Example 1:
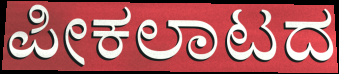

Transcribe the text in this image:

ಪೀಕಲಾಟದ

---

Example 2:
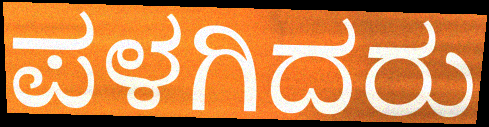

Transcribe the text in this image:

ಪಳಗಿದರು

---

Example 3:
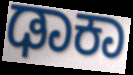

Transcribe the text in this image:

ಢಾಕಾ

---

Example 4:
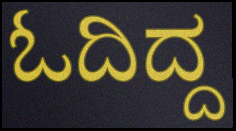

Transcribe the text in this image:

ಓದಿದ್ದ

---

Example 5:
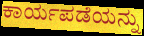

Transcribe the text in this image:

ಕಾರ್ಯಪಡೆಯನ್ನು